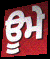
ਊਮੇ